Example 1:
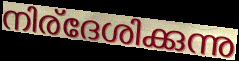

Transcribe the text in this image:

നിര്ദേശിക്കുന്നു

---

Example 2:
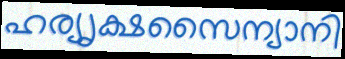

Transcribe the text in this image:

ഹര്യൃക്ഷസൈന്യാനി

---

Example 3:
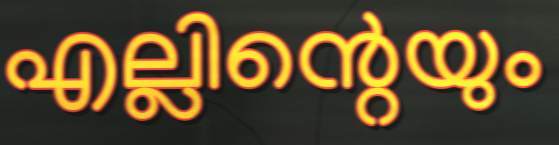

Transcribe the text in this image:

എല്ലിന്റെയും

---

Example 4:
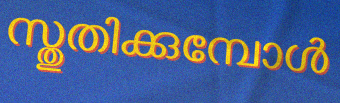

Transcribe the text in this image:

സ്തുതിക്കുമ്പോൾ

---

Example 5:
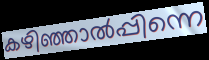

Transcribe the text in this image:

കഴിഞ്ഞാൽപ്പിന്നെ